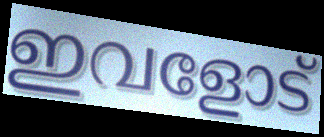
ഇവളോട്